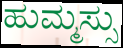
ಹುಮ್ಮಸ್ಸು